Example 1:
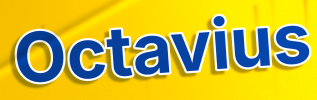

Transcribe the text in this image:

Octavius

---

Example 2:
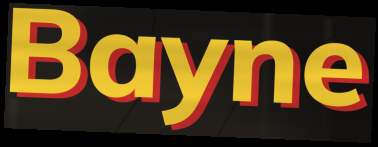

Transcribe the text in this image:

Bayne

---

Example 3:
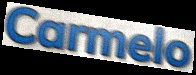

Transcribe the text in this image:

Carmelo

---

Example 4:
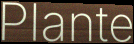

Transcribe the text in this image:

Plante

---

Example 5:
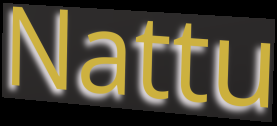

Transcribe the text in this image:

Nattu